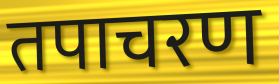
तपाचरण